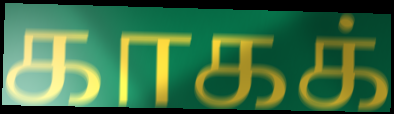
காகக்